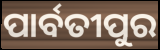
ପାର୍ବତୀପୁର